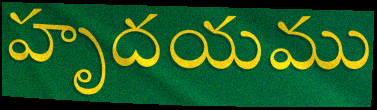
హృదయము